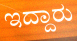
ಇದ್ದಾರು